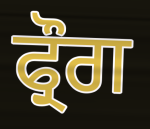
ਫ੍ਰੌਗ